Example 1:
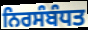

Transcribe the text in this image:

ਨਿਰਸੰਬੰਧਤ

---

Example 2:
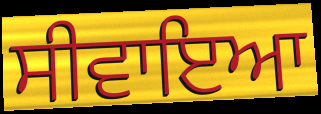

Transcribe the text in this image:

ਸੀਵਾਇਆ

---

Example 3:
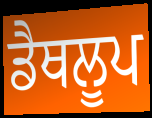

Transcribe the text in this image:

ਡੈਥਲੂਪ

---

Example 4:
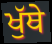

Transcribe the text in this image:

ਖੁੱਥੇ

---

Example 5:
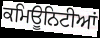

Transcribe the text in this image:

ਕਮਿਊਨਿਟੀਆਂ